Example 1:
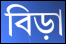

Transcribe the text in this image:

বিড়া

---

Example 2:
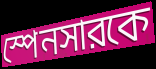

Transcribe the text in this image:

স্পেনসারকে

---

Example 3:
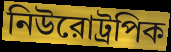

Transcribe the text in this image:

নিউরোট্রপিক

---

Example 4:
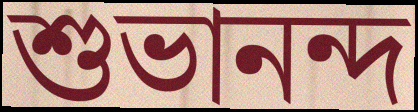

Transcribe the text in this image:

শুভানন্দ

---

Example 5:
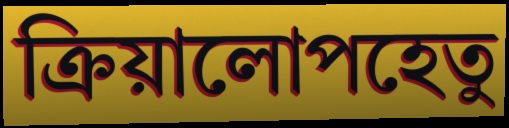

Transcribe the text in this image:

ক্রিয়ালোপহেতু